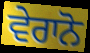
ਵੇਰਾਨੋ